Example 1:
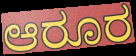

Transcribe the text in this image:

ಆರೂರ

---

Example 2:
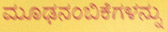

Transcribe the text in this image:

ಮೂಢನಂಬಿಕೆಗಳನ್ನು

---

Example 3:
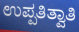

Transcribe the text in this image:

ಉಪ್ಪತಿತ್ವಾತಿ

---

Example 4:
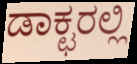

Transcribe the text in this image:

ಡಾಕ್ಟರಲ್ಲಿ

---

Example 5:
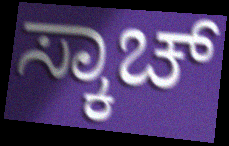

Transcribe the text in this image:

ಸ್ಕಾಚ್